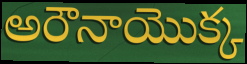
అరౌనాయొక్క